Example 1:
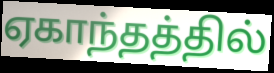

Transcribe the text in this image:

ஏகாந்தத்தில்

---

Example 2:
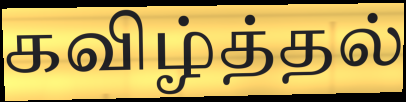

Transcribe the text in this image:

கவிழ்த்தல்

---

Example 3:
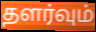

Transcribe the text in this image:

தளர்வும்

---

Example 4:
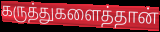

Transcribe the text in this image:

கருத்துகளைத்தான்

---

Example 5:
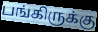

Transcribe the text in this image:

பங்கிருக்கு